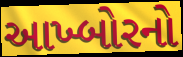
આખ્બોરનો